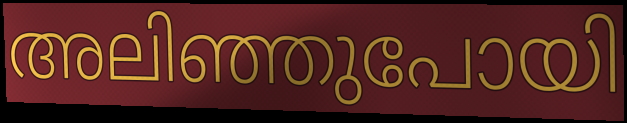
അലിഞ്ഞുപോയി